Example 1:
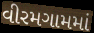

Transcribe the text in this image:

વીરમગામમાં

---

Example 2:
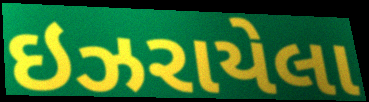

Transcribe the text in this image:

ઇઝરાયેલા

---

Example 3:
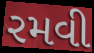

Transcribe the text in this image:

રમવી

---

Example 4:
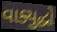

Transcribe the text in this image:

વાક્યુદ્ધો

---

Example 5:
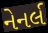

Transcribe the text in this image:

નેનર્લ